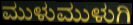
ಮುಳುಮುಳುಗಿ